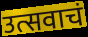
उत्सवाचं